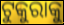
ଟୁକୁରାକୁ